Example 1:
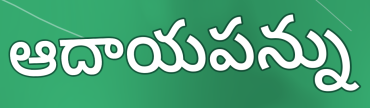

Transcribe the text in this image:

ఆదాయపన్ను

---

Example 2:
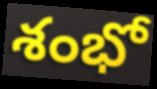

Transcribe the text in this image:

శంభో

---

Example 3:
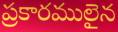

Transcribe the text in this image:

ప్రకారములైన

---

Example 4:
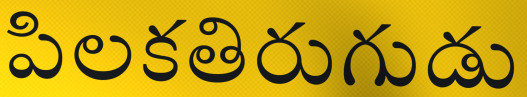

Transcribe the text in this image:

పిలకతిరుగుడు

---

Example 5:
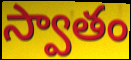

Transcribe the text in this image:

స్వాతం